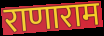
राणाराम